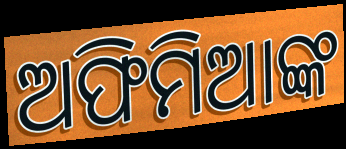
ଅଫିମିଆଙ୍କ